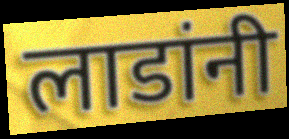
लाडांनी